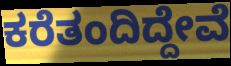
ಕರೆತಂದಿದ್ದೇವೆ